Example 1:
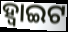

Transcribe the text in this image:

ହ୍ବାଇଟ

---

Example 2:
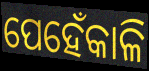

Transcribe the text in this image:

ପେହେଁକାଳି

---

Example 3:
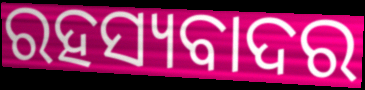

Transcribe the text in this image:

ରହସ୍ୟବାଦର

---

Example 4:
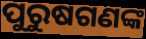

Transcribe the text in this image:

ପୁରୁଷଗଣଙ୍କ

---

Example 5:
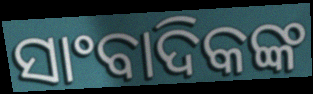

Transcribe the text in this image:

ସାଂବାଦିକଙ୍କ